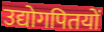
उद्योगपितयों